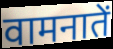
वामनातें